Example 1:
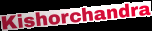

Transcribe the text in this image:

Kishorchandra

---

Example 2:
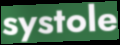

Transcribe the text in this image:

systole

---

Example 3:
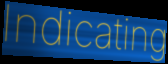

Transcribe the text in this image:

Indicating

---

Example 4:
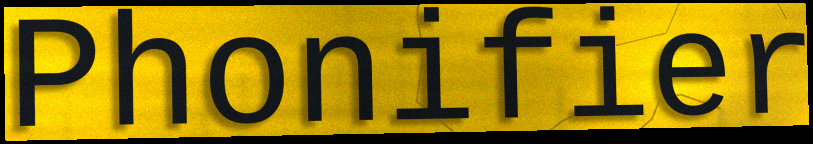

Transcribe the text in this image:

Phonifier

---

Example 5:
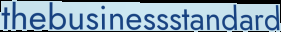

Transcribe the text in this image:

thebusinessstandard